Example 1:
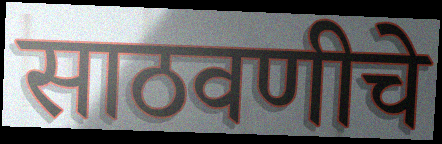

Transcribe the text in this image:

साठवणीचे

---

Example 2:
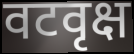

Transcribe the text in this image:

वटवृक्ष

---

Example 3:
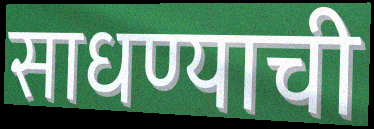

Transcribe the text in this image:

साधण्याची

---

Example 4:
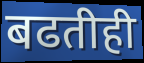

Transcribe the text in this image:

बढतीही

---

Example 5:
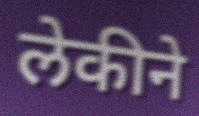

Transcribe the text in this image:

लेकीने